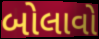
બોલાવો